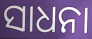
ସାଧନା